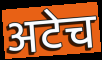
अटेच